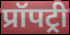
प्रॉपट्री